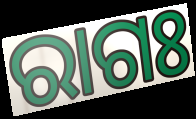
ରାଗଃ